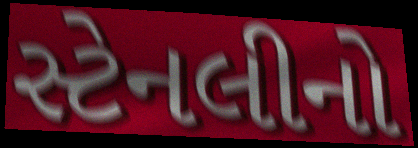
સ્ટેનલીનો